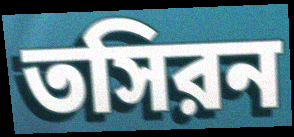
তসিরন